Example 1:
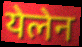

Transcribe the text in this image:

येलेन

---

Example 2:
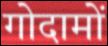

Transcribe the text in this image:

गोदामों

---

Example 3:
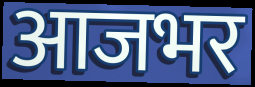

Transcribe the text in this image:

आजभर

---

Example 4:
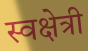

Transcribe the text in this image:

स्वक्षेत्री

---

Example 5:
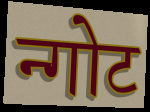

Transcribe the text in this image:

न्गोट